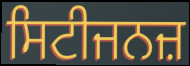
ਸਿਟੀਜਨਜ਼